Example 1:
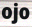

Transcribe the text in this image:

ojo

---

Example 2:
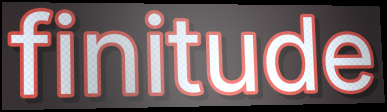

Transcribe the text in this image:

finitude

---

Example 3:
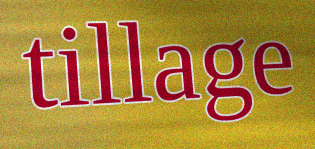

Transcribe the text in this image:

tillage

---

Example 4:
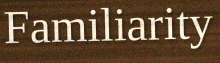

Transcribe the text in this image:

Familiarity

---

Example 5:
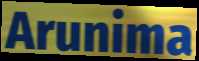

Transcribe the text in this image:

Arunima